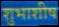
शुभाशीष